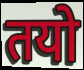
तयो